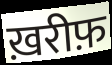
ख़रीफ़